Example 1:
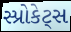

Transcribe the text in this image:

સ્પ્રોકેટ્સ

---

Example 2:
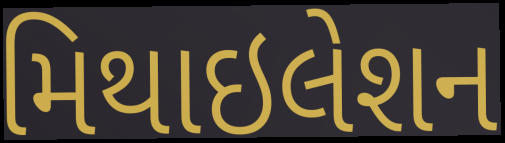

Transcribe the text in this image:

મિથાઇલેશન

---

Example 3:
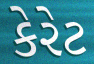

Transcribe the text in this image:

કેરેટ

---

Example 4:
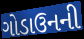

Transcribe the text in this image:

ગોડાઉનની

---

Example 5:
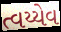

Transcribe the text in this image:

ત્વય્યેવ